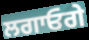
ਲਗਾਓਗੇ